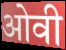
ओवी